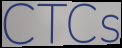
CTCs